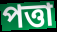
পত্তা